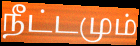
நீட்டமும்